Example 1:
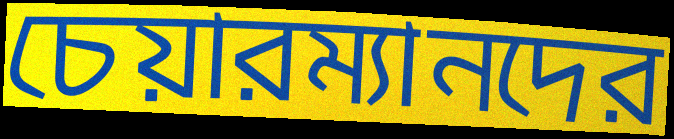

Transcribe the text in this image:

চেয়ারম্যানদের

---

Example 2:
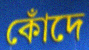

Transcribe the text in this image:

কোঁদে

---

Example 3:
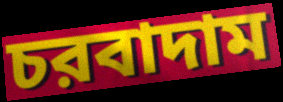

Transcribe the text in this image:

চরবাদাম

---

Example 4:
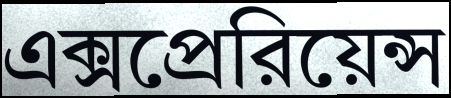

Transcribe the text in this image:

এক্সপ্রেরিয়েন্স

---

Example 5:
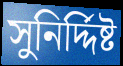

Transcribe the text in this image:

সুনির্দ্দিষ্ট